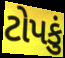
ટોપકું